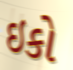
ઇકો